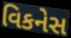
વિકનેસ